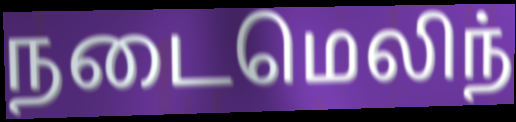
நடைமெலிந்